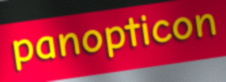
panopticon